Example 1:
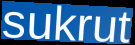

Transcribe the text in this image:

sukrut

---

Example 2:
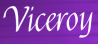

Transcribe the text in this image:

Viceroy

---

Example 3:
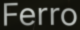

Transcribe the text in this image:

Ferro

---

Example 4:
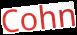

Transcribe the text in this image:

Cohn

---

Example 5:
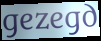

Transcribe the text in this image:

gezegd